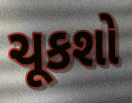
ચૂકશો